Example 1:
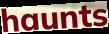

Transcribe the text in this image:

haunts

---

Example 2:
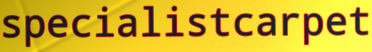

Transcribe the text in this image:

specialistcarpet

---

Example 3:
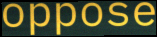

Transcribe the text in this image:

oppose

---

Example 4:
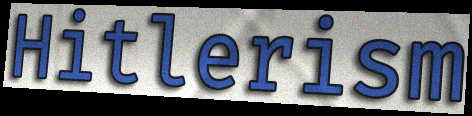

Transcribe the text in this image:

Hitlerism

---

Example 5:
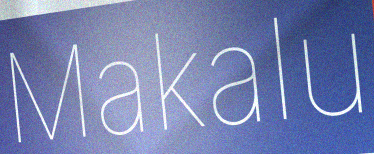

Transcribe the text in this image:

Makalu